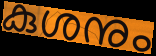
കുശനും